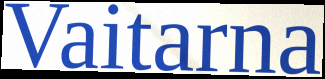
Vaitarna